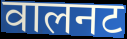
वालनट